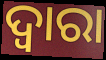
ଦ୍ଵାରା